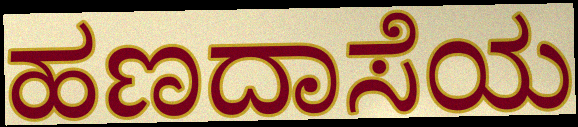
ಹಣದಾಸೆಯ